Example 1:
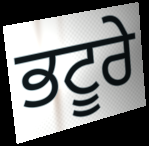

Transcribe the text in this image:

ਭਟੂਰੇ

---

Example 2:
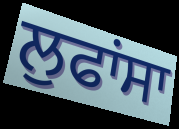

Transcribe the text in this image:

ਲੁਫਾਂਸਾ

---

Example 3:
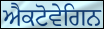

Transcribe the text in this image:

ਐਕਟੋਵੇਗਿਨ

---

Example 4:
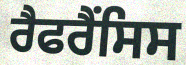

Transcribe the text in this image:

ਰੈਫਰੈਂਸਿਸ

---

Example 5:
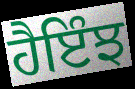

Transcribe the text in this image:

ਹੈਇੰਝ